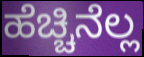
ಹೆಚ್ಚಿನೆಲ್ಲ